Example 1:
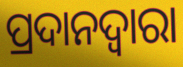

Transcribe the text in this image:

ପ୍ରଦାନଦ୍ୱାରା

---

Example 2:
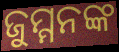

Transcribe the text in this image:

ଜୁମ୍ମନଙ୍କ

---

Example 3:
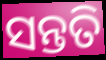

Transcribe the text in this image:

ସନ୍ତତି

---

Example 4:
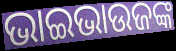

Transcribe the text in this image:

ଭାଇଭାଉଜଙ୍କ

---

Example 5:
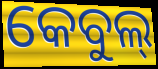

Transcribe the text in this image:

କେବୁଲ୍